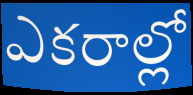
ఎకరాల్లో